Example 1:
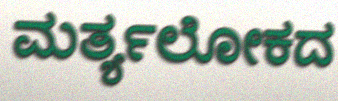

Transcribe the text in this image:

ಮರ್ತ್ಯಲೋಕದ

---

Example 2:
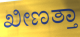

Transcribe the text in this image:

ಖೀಣತ್ತಾ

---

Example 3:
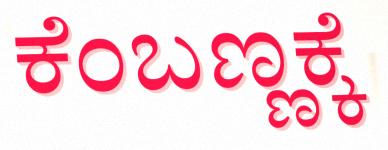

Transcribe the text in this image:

ಕೆಂಬಣ್ಣಕ್ಕೆ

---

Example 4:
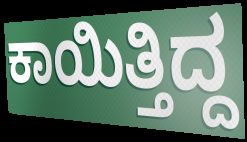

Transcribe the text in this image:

ಕಾಯಿತ್ತಿದ್ದ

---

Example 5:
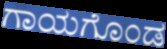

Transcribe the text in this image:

ಗಾಯಗೊಂಡ